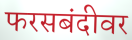
फरसबंदीवर